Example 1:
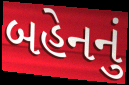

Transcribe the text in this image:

બહેનનું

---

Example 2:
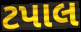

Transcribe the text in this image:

ટપાલ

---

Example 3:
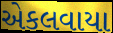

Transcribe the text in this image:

એકલવાયા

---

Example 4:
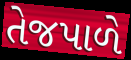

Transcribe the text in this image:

તેજપાળે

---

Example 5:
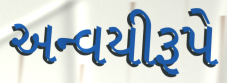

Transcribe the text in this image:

અન્વયીરૂપે